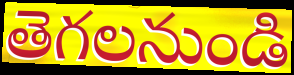
తెగలనుండి